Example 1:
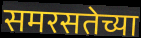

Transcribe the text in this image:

समरसतेच्या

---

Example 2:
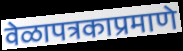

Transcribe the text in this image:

वेळापत्रकाप्रमाणे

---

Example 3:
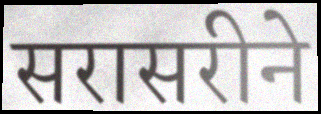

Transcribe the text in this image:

सरासरीने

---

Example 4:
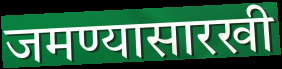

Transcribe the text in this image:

जमण्यासारखी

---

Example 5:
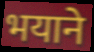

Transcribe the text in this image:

भयाने